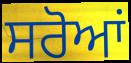
ਸਰੋਆਂ